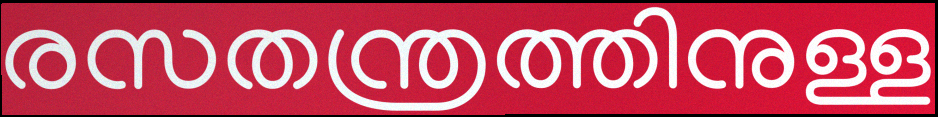
രസതന്ത്രത്തിനുള്ള